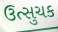
ઉત્સુચક